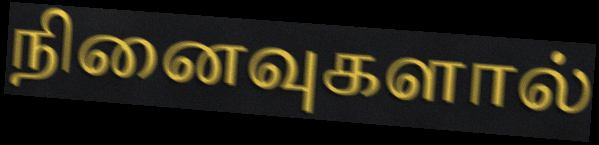
நினைவுகளால்